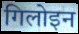
गिलोइन